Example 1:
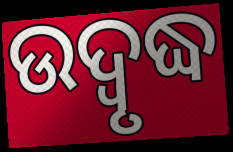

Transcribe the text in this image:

ଉଦ୍ବୃଦ୍ଧ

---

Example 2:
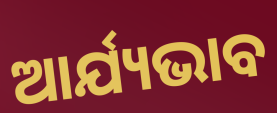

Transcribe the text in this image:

ଆର୍ଯ୍ୟଭାବ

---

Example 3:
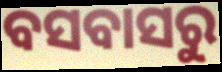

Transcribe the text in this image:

ବସବାସରୁ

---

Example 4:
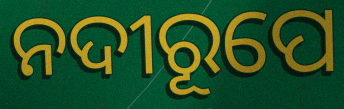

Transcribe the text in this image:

ନଦୀରୂପେ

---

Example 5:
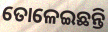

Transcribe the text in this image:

ତୋଳେଇଛନ୍ତି